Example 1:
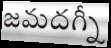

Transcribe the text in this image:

జమదగ్నీ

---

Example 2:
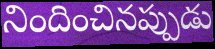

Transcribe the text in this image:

నిందించినప్పుడు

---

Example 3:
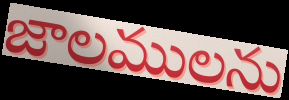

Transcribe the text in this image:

జాలములను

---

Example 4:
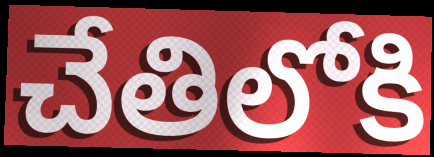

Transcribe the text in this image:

చేతిలోకి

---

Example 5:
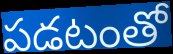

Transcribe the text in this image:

పడటంతో